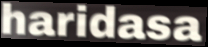
haridasa